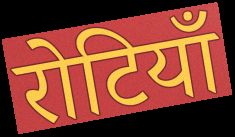
रोटियाँ